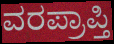
ವರಪ್ರಾಪ್ತಿ